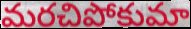
మరచిపోకుమా